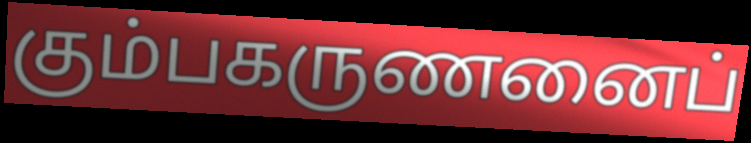
கும்பகருணனைப்